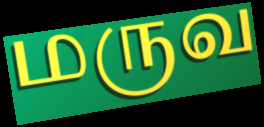
மருவ